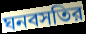
ঘনবসতির